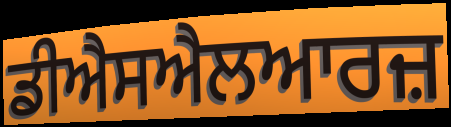
ਡੀਐਸਐਲਆਰਜ਼